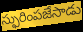
స్ఫురింపజేసాడు